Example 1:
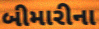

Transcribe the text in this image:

બીમારીના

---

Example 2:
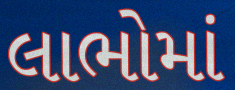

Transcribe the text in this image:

લાભોમાં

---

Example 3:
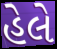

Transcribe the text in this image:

હેલે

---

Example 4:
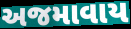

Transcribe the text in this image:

અજમાવાય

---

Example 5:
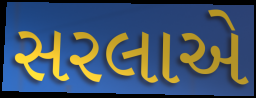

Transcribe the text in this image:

સરલાએ